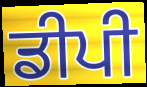
ਡੀਪੀ